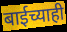
बाईच्याही